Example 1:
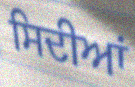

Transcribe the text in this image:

ਸਿਦੀਆਂ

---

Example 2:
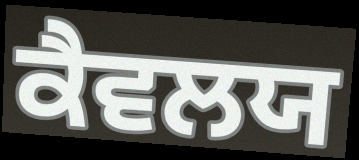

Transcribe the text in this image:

ਕੈਵਲਯ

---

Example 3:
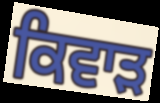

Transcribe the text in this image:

ਕਿਵਾੜ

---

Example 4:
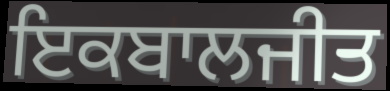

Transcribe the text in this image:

ਇਕਬਾਲਜੀਤ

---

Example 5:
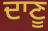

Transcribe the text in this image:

ਦਾਣੂ